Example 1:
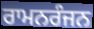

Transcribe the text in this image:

ਰਾਮਨਰੰਜਨ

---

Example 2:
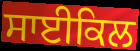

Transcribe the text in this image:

ਸਾਈਕਿਲ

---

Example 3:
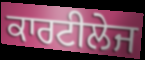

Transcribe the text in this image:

ਕਾਰਟੀਲੇਜ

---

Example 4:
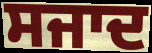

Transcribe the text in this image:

ਸਜਾਦ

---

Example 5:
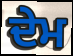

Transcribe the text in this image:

ਦੇਮ